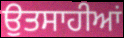
ਉਤਸਾਹੀਆਂ